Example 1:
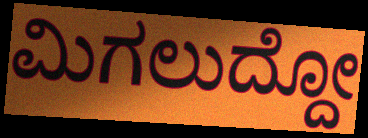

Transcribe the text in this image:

ಮಿಗಲುದ್ದೋ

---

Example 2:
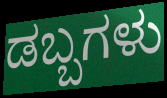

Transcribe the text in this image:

ಡಬ್ಬಗಳು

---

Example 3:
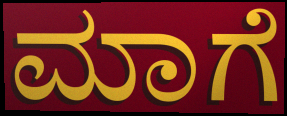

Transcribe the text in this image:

ಮಾಗೆ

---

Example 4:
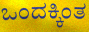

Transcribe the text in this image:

ಒಂದಕ್ಕಿಂತ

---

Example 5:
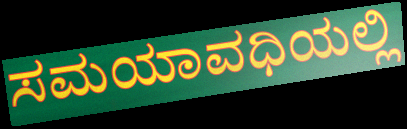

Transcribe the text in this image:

ಸಮಯಾವಧಿಯಲ್ಲಿ